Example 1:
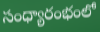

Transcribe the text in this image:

సంధ్యారంభంలో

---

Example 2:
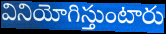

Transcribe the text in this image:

వినియోగిస్తుంటారు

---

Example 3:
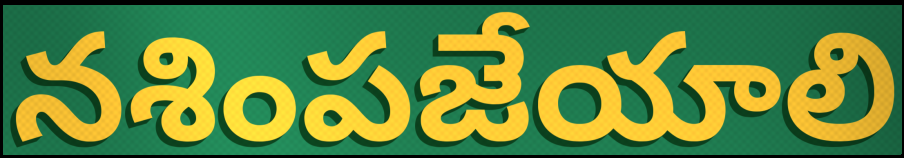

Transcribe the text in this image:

నశింపజేయాలి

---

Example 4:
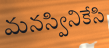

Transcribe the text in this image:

మనస్వినికేసి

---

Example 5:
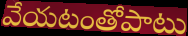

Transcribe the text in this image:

వేయటంతోపాటు